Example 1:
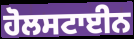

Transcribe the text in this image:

ਹੋਲਸਟਾਈਨ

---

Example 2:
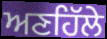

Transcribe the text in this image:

ਅਣਹਿੱਲੇ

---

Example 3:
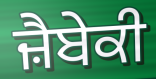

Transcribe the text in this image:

ਜ਼ੈਬੇਕੀ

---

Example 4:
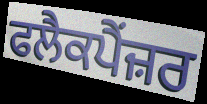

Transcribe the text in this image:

ਫਲੈਕਪੈਂਜ਼ਰ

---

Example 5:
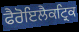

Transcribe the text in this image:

ਫੈਰੋਇਲੈਕਟ੍ਰਿਕ